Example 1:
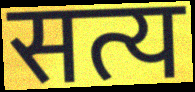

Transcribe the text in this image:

सत्य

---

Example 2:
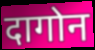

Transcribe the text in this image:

दागोन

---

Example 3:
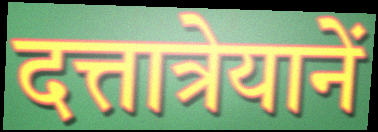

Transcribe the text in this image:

दत्तात्रेयानें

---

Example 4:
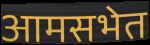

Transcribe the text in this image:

आमसभेत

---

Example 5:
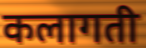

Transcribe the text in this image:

कलागती